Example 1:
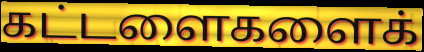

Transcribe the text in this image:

கட்டளைகளைக்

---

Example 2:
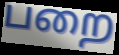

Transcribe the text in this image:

பறை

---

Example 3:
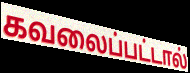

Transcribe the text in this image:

கவலைப்பட்டால்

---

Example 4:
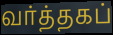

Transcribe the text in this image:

வர்த்தகப்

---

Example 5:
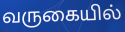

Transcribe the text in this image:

வருகையில்